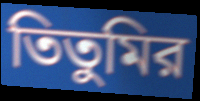
তিতুমির